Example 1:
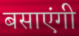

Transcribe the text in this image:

बसाएंगी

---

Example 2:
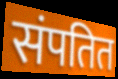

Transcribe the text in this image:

संपतित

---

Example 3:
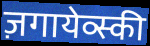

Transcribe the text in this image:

ज़गायेव्स्की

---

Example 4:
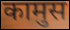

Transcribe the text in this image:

कामुस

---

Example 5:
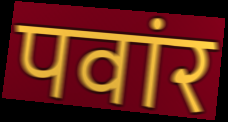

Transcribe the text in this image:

पवांर